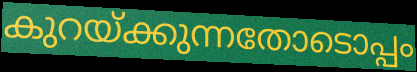
കുറയ്ക്കുന്നതോടൊപ്പം